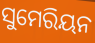
ସୁମେରିୟନ